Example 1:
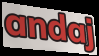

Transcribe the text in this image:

andaj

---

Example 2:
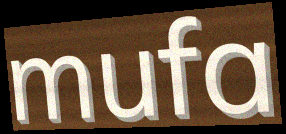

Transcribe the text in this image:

mufa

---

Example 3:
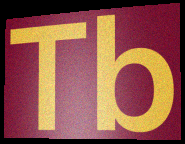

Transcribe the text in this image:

Tb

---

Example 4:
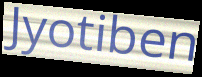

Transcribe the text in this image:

Jyotiben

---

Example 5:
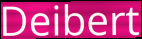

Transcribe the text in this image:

Deibert